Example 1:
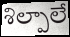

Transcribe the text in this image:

శిల్పాలే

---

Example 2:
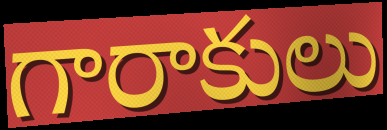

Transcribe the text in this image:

గారాకులు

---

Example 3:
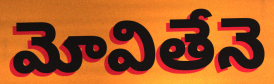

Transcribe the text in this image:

మోవితేనె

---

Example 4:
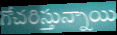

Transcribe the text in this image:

గోచరిస్తున్నాయి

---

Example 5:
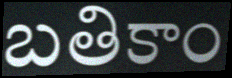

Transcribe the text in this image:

బతికాం